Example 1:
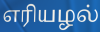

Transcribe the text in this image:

எரியழல்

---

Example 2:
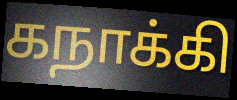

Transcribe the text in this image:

கநாக்கி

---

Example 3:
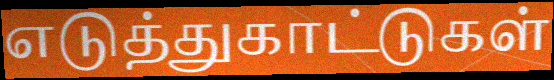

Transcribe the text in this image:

எடுத்துகாட்டுகள்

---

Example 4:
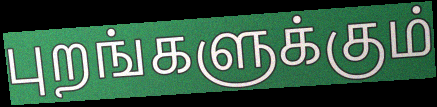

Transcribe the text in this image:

புறங்களுக்கும்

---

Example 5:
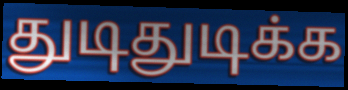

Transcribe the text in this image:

துடிதுடிக்க